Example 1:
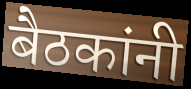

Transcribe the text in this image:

बैठकांनी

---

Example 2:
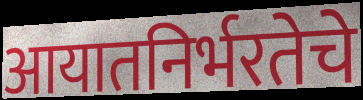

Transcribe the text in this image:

आयातनिर्भरतेचे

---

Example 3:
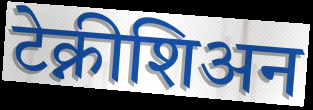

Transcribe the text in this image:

टेक्नीशिअन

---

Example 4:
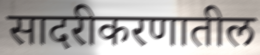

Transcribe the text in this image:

सादरीकरणातील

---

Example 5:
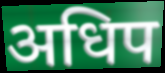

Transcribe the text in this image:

अधिप